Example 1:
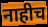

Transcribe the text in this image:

नाहीच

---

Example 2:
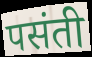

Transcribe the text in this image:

पसंती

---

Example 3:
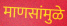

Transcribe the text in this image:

माणसांमुळे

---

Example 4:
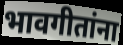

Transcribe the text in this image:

भावगीतांना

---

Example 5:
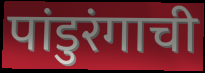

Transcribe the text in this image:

पांडुरंगाची